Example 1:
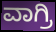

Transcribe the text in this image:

ವಾಗ್ರಿ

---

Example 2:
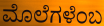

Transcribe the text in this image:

ಮೊಲೆಗಳೆಂಬ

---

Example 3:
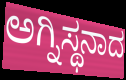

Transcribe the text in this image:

ಅಗ್ನಿಸ್ಥನಾದ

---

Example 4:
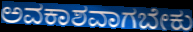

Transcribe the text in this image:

ಅವಕಾಶವಾಗಬೇಕು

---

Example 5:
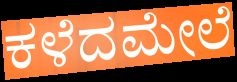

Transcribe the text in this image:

ಕಳೆದಮೇಲೆ